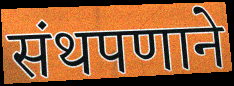
संथपणाने